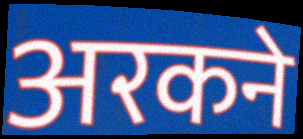
अरकने